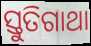
ସ୍ତୁତିଗାଥା